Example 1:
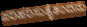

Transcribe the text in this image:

ಪರಿಹರಿಸುತೈತಂದನು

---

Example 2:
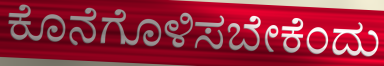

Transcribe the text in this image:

ಕೊನೆಗೊಳಿಸಬೇಕೆಂದು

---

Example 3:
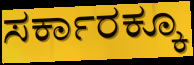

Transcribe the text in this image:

ಸರ್ಕಾರಕ್ಕೂ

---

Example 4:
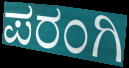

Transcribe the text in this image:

ಪರಂಗಿ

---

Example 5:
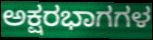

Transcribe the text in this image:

ಅಕ್ಷರಭಾಗಗಳ